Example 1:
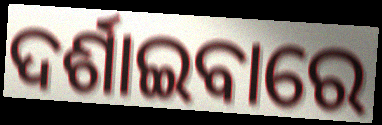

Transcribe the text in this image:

ଦର୍ଶାଇବାରେ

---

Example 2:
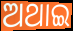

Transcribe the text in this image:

ଅଥାଇ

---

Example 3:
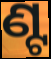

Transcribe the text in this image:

ଣ୍ଟ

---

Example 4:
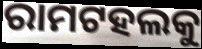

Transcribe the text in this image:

ରାମଟହଲକୁ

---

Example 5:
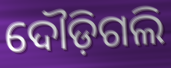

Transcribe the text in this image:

ଦୌଡ଼ିଗଲି